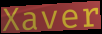
Xaver